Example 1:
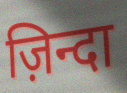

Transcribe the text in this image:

ज़िन्दा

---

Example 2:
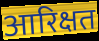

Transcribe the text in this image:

आरिक्षत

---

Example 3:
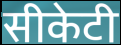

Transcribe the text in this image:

सीकेटी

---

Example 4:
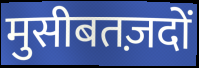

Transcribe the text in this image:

मुसीबतज़दों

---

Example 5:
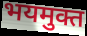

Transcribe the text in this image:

भयमुक्त